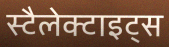
स्टैलेक्टाइट्स